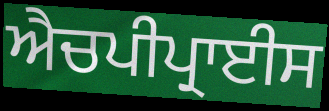
ਐਚਪੀਪ੍ਰਾਈਸ